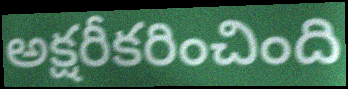
అక్షరీకరించింది